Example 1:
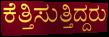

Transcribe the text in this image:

ಕೆತ್ತಿಸುತ್ತಿದ್ದರು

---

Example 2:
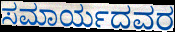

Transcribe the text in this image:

ಸಮಾರ್ಯದವರ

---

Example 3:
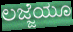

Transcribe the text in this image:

ಲಜ್ಜೆಯೂ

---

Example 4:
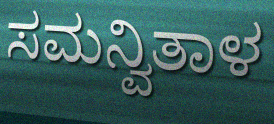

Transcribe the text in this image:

ಸಮನ್ವಿತಾಳ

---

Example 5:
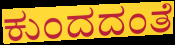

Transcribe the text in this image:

ಕುಂದದಂತೆ